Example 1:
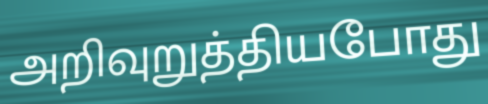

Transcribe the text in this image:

அறிவுறுத்தியபோது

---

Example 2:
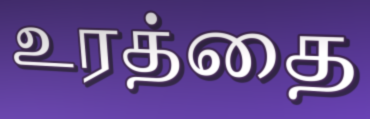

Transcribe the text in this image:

உரத்தை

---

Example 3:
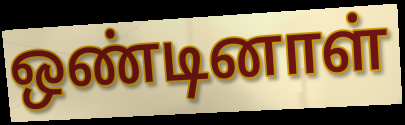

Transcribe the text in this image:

ஒண்டினாள்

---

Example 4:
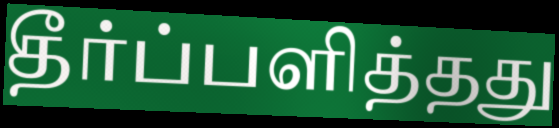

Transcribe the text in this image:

தீர்ப்பளித்தது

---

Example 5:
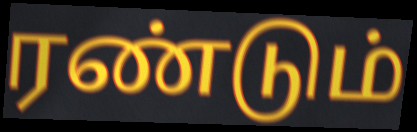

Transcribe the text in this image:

ரண்டும்